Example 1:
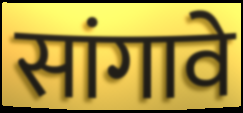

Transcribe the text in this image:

सांगावे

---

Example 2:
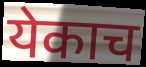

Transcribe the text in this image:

येकाच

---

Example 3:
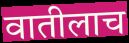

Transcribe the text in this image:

वातीलाच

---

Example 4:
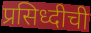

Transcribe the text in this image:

प्रसिध्दीची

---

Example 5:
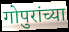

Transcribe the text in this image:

गोपुरांच्या